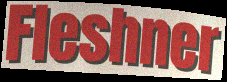
Fleshner